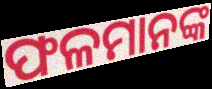
ଫଳମାନଙ୍କ